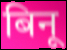
बिनू